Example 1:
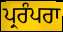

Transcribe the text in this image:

ਪ੍ਰਰੰਪਰਾ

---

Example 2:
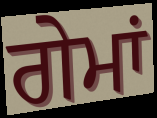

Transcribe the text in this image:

ਗੇਮਾਂ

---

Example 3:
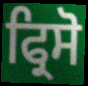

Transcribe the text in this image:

ਫ੍ਰਿਸੋ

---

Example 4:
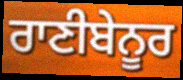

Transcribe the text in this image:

ਰਾਣੀਬੇਨੂਰ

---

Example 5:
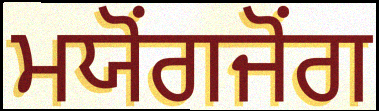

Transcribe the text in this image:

ਮਯੋਂਗਜੋਂਗ